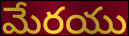
మేరయు